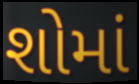
શોમાં